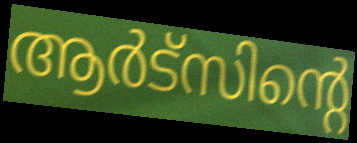
ആർട്സിന്റെ